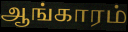
ஆங்காரம்